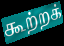
கூற்றக்